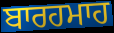
ਬਾਰਹਮਾਹ